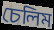
চেলিম